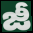
జీ